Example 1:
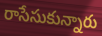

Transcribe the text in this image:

రాసేసుకున్నారు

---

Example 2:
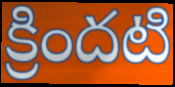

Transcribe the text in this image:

క్రిందటి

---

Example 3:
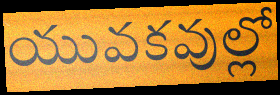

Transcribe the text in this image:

యువకవుల్లో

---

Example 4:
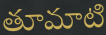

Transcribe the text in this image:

తూమాటి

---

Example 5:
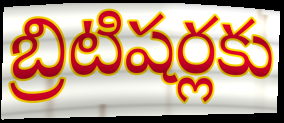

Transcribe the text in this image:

బ్రిటిషర్లకు